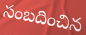
సంబదించిన